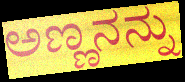
ಅಣ್ಣನನ್ನು